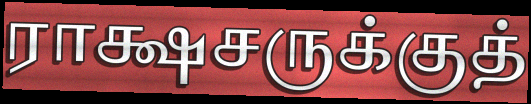
ராக்ஷசருக்குத்